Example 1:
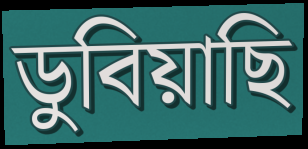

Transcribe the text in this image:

ডুবিয়াছি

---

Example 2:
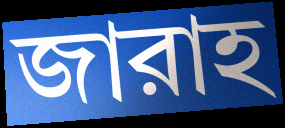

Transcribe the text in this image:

জারাহ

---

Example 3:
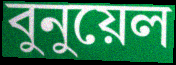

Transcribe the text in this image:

বুনুয়েল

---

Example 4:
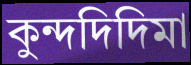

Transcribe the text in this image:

কুন্দদিদিমা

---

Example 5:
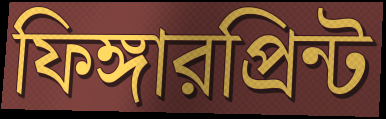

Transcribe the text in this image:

ফিঙ্গারপ্রিন্ট